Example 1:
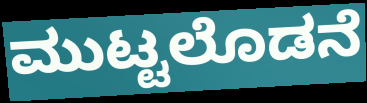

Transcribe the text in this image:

ಮುಟ್ಟಲೊಡನೆ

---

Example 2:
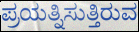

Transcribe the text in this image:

ಪ್ರಯತ್ನಿಸುತ್ತಿರುವ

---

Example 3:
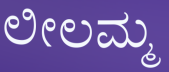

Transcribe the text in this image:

ಲೀಲಮ್ಮ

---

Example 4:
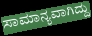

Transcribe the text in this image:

ಸಾಮಾನ್ಯವಾಗಿದ್ದು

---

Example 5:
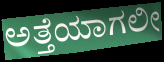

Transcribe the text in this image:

ಅತ್ತೆಯಾಗಲೀ